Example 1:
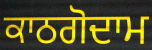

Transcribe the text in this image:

ਕਾਠਗੋਦਾਮ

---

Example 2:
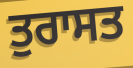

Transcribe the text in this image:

ਤੁਰਾਸਤ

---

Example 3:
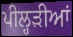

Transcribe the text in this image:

ਪੀਲ੍ਹੜੀਆਂ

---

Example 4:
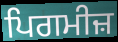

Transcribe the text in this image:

ਪਿਗਮੀਜ਼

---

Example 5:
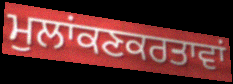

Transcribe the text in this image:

ਮੁਲਾਂਕਣਕਰਤਾਵਾਂ